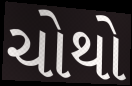
ચોથો